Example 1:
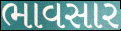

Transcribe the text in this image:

ભાવસાર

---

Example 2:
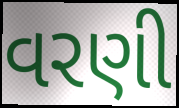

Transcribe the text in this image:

વરણી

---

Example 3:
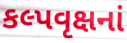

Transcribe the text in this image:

કલ્પવૃક્ષનાં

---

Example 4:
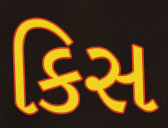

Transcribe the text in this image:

કિસ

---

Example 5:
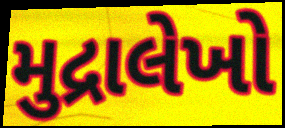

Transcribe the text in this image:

મુદ્રાલેખો